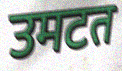
उमटत